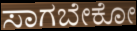
ಸಾಗಬೇಕೋ